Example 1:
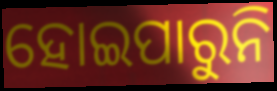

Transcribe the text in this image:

ହୋଇପାରୁନି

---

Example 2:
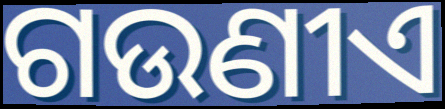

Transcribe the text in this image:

ଗଉଣୀଏ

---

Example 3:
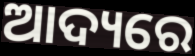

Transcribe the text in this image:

ଆଦ୍ୟରେ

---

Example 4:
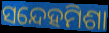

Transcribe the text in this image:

ସନ୍ଦେହମିଶା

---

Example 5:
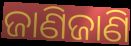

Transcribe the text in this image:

ଜାଣିଜାଣି